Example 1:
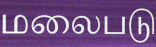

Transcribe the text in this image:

மலைபடு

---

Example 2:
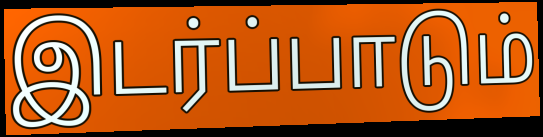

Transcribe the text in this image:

இடர்ப்பாடும்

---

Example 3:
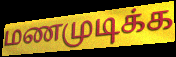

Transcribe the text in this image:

மணமுடிக்க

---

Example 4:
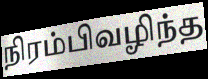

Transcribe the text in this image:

நிரம்பிவழிந்த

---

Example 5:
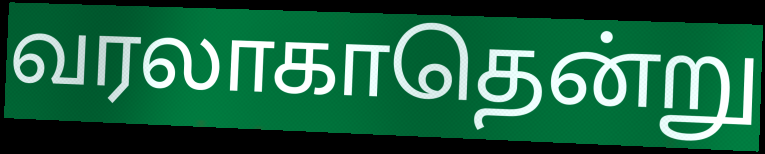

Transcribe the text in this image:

வரலாகாதென்று